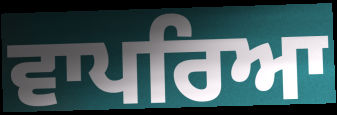
ਵਾਪਰਿਆ